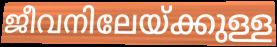
ജീവനിലേയ്ക്കുള്ള